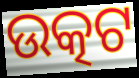
ଉତ୍କଟ